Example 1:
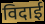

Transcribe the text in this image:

विदाई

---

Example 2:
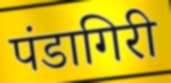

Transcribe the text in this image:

पंडागिरी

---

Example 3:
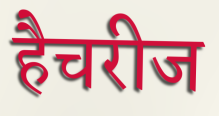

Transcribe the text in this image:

हैचरीज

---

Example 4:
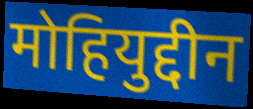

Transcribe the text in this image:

मोहियुद्दीन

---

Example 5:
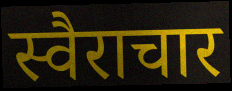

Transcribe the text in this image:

स्वैराचार